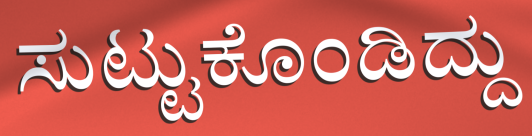
ಸುಟ್ಟುಕೊಂಡಿದ್ದು